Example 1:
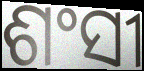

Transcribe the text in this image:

ଶଂସୀ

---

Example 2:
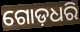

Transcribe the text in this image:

ଗୋଡ଼ଧରି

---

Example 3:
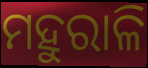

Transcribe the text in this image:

ମହୁରାଳି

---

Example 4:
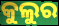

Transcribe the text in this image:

କୁଲୁର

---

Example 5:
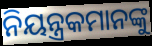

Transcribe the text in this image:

ନିୟନ୍ତ୍ରକମାନଙ୍କୁ